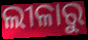
ଲୀଳାରୁ